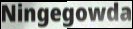
Ningegowda